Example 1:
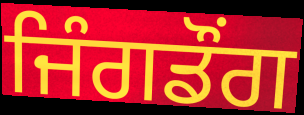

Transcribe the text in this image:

ਜਿੰਗਡੌਂਗ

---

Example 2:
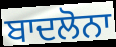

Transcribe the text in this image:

ਬਾਦਲੋਨਾ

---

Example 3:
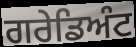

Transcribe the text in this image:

ਗਰੇਡਿਅੰਟ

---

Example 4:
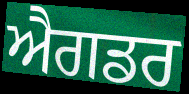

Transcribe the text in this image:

ਐਗਡਰ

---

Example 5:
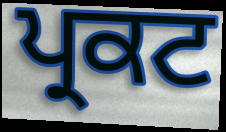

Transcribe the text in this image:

ਪ੍ਰਕਟ